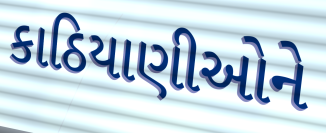
કાઠિયાણીઓને